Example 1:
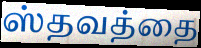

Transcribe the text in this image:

ஸ்தவத்தை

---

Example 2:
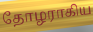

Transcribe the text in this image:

தோழராகிய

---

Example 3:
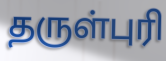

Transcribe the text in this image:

தருள்புரி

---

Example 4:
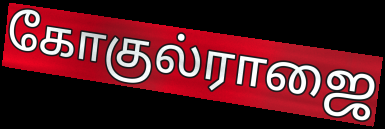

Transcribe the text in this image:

கோகுல்ராஜை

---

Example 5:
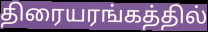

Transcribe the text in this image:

திரையரங்கத்தில்